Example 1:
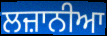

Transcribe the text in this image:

ਲਜ਼ਾਨੀਆ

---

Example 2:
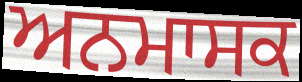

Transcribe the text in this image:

ਅਨਮਾਸਕ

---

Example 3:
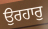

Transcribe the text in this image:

ਉਰਹਾਰੁ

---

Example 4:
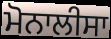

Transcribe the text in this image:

ਮੋਨਾਲੀਸਾ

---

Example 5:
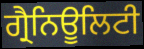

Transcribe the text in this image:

ਗ੍ਰੈਨਿਊਲਿਟੀ